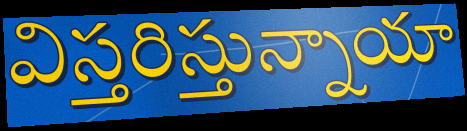
విస్తరిస్తున్నాయా